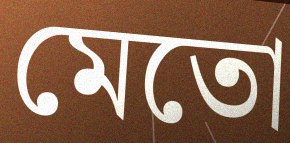
মেতো